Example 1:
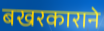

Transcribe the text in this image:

बखरकाराने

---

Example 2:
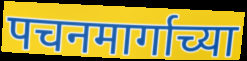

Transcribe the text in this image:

पचनमार्गाच्या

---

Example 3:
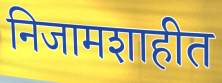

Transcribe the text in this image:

निजामशाहीत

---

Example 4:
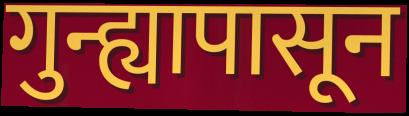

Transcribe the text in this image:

गुन्ह्यापासून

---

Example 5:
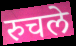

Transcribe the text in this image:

रुचले